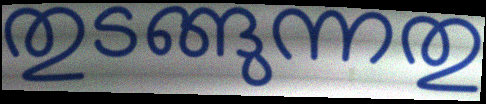
തുടങ്ങുന്നതു